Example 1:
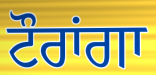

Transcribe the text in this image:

ਟੌਰਾਂਗਾ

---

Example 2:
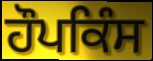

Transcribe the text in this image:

ਹੌਪਕਿੰਸ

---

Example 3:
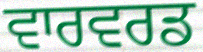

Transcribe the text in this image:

ਵਾਰਵਰਡ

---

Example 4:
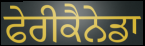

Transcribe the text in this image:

ਫੇਰੀਕੈਨੇਡਾ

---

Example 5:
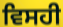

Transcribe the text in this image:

ਵਿਸਹੀ